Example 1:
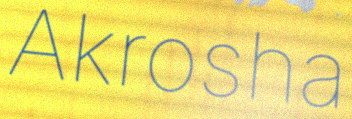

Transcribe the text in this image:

Akrosha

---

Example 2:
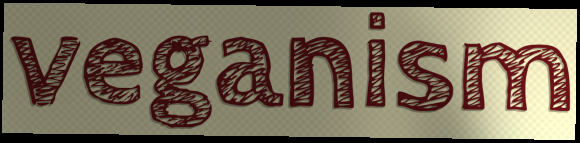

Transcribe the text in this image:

veganism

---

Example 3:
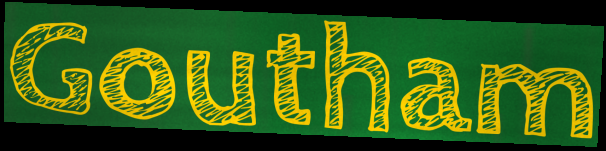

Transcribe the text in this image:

Goutham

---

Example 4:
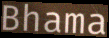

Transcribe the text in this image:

Bhama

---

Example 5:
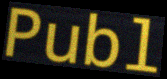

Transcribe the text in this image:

Publ